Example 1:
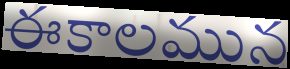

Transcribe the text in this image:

ఈకాలమున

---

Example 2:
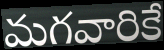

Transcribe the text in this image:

మగవారికే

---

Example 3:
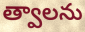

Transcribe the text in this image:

త్వాలను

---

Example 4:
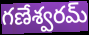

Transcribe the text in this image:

గణేశ్వరమ్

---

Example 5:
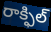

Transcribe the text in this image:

రాక్ఫిల్